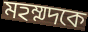
মহম্মদকে